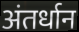
अंतर्धान